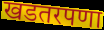
खडतरपणा